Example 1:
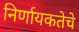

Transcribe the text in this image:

निर्णायकतेचे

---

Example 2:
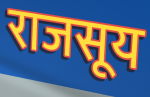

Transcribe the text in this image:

राजसूय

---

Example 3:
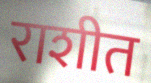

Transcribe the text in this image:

राशीत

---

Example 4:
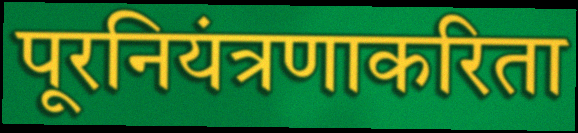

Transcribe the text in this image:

पूरनियंत्रणाकरिता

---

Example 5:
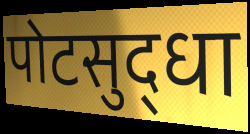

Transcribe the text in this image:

पोटसुद्धा